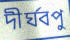
দীর্ঘবপু